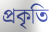
প্রকৃতি